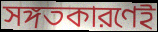
সঙ্গতকারণেই